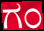
ಗಂ